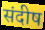
संदीष